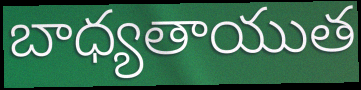
బాధ్యతాయుత